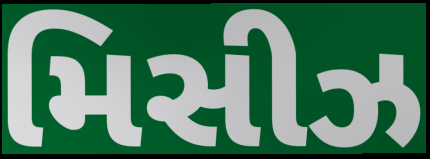
મિસીઝ